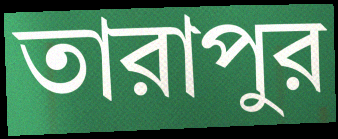
তারাপুর